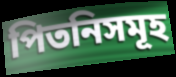
পিতনিসমূহ